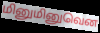
மினுமினுவென